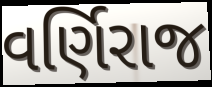
વર્ણિરાજ